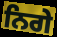
ਨਿਗੇ